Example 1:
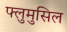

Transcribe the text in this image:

फ्लुमुसिल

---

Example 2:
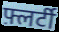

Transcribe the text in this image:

फ़्लर्टी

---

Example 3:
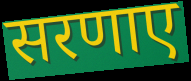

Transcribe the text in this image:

सरणाए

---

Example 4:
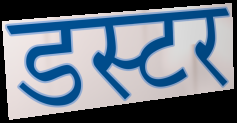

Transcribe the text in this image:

डस्टर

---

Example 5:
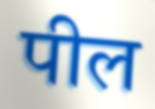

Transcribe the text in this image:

पील